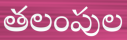
తలంపుల